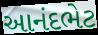
આનંદભેટ